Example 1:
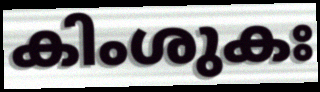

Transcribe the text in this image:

കിംശുകഃ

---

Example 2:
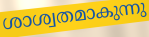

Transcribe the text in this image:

ശാശ്വതമാകുന്നു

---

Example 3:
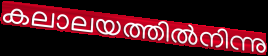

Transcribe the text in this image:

കലാലയത്തിൽനിന്നു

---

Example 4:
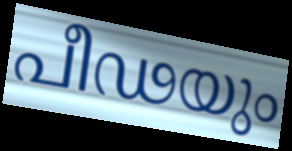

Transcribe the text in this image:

പീഢയും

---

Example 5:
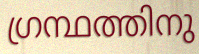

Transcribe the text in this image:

ഗ്രന്ഥത്തിനു